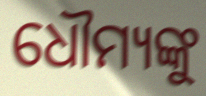
ଧୌମ୍ୟଙ୍କୁ